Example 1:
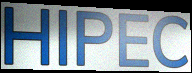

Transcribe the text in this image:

HIPEC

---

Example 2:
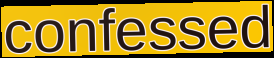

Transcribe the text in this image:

confessed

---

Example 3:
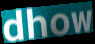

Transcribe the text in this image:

dhow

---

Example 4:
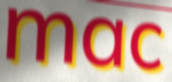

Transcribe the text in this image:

mac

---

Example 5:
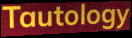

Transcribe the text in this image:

Tautology